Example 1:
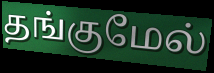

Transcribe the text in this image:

தங்குமேல்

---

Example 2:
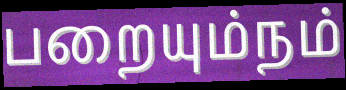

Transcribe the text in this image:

பறையும்நம்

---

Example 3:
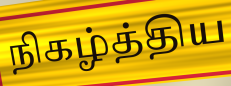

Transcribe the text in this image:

நிகழ்த்திய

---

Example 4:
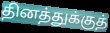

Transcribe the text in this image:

தினத்துக்குத்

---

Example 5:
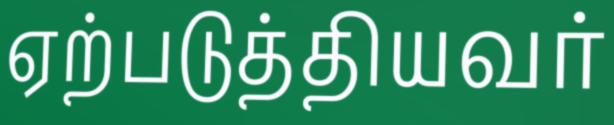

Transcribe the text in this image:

ஏற்படுத்தியவர்